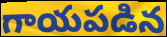
గాయపడిన